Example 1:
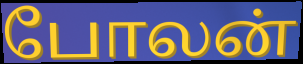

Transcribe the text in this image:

போலன்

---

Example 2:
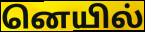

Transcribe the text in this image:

னெயில்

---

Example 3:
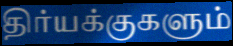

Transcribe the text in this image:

திர்யக்குகளும்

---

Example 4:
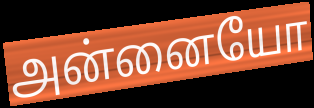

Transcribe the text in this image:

அன்னையோ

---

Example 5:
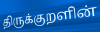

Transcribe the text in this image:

திருக்குறளின்